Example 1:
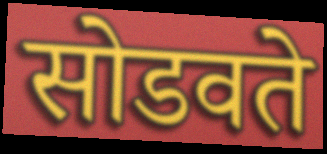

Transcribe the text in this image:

सोडवते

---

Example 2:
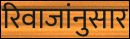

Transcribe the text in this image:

रिवाजांनुसार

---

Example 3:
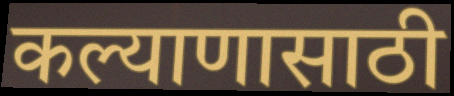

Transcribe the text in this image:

कल्याणासाठी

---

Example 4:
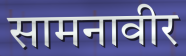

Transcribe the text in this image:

सामनावीर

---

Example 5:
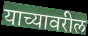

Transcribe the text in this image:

याच्यावरील